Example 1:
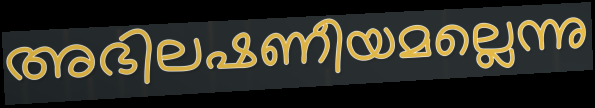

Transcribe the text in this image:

അഭിലഷണീയമല്ലെന്നു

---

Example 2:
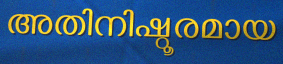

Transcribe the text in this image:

അതിനിഷ്ഠൂരമായ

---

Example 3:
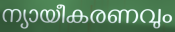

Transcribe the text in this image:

ന്യായീകരണവും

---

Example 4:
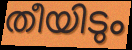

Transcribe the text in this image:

തീയിടും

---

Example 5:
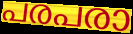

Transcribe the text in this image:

പരപരാ